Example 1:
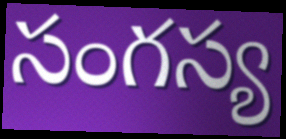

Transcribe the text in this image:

సంగస్య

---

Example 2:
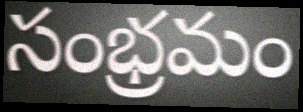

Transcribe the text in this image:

సంభ్రమం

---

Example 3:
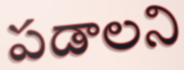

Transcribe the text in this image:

పడాలని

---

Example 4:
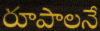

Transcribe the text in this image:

రూపాలనే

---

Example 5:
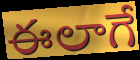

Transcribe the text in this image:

ఈలాగే